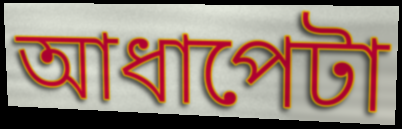
আধাপেটা